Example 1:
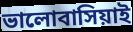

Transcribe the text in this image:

ভালোবাসিয়াই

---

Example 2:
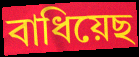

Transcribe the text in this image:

বাধিয়েছ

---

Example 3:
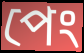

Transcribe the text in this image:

পেং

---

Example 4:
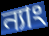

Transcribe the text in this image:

ন্যাং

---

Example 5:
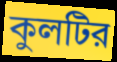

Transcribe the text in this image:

কুলটির